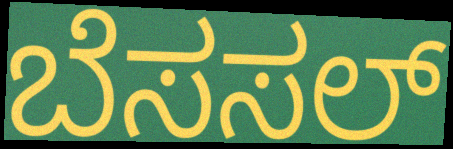
ಬೆಸಸಲ್